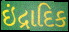
ઇંદ્રાદિક